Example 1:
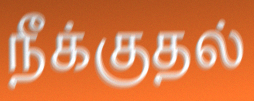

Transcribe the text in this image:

நீக்குதல்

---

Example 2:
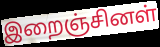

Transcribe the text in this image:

இறைஞ்சினள்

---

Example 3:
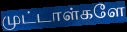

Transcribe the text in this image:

முட்டாள்களே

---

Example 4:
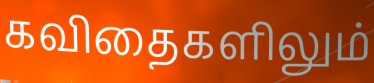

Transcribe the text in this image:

கவிதைகளிலும்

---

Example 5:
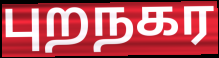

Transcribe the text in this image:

புறநகர